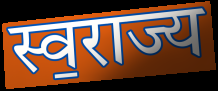
स्व॒राज्य